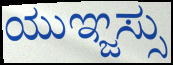
ಯುಞ್ಜಸ್ಸು